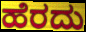
ಹೆರದು